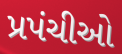
પ્રપંચીઓ